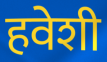
हवेशी